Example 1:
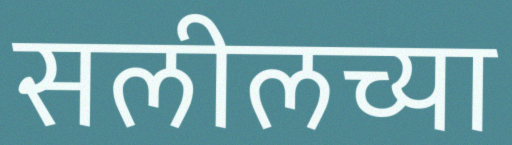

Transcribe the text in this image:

सलीलच्या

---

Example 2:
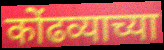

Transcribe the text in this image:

कोंढव्याच्या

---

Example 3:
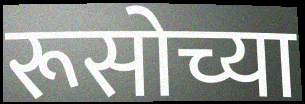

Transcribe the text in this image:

रूसोच्या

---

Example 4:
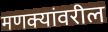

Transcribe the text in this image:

मणक्यांवरील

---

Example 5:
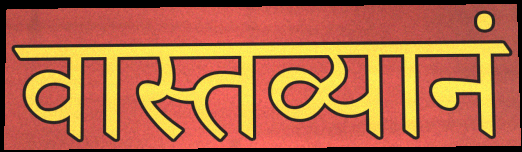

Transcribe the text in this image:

वास्तव्यानं